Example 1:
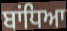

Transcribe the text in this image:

ਬਾਂਧਿਆ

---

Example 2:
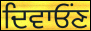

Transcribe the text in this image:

ਦਿਵਾਓੰਣ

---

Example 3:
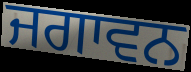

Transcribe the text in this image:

ਜਗਾਵਨ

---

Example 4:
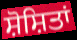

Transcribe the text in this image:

ਸ਼ੋਸ਼ਿਤਾਂ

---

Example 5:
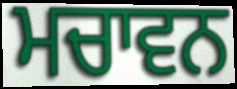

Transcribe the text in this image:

ਮਚਾਵਨ